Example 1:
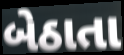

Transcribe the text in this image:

બેઠાતા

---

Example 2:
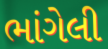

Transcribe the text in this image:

ભાંગેલી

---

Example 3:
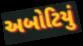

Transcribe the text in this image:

અબોટિયું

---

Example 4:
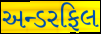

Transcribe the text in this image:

અન્ડરફિલ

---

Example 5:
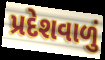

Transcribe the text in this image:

પ્રદેશવાળું